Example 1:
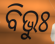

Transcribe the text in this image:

ବିଭୁଃ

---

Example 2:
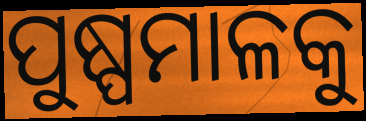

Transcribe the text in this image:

ପୁଷ୍ପମାଳକୁ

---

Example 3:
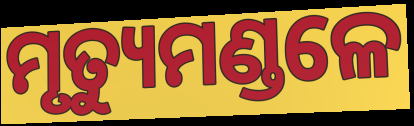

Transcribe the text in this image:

ମୃତ୍ୟୁମଣ୍ଡଳେ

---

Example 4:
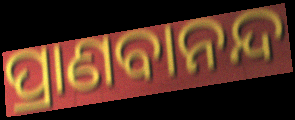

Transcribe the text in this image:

ପ୍ରାଣବାନନ୍ଦ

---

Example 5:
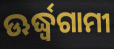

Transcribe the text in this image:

ଊର୍ଦ୍ଧ୍ଵଗାମୀ